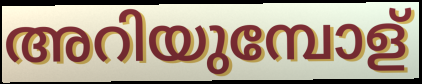
അറിയുമ്പോള്